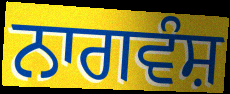
ਨਾਗਵੰਸ਼